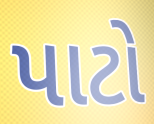
પાટો